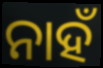
ନାହଁ